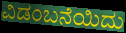
ವಿಡಂಬನೆಯಿದು